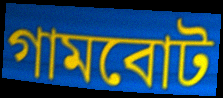
গামবোট